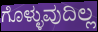
ಗೊಳ್ಳುವುದಿಲ್ಲ